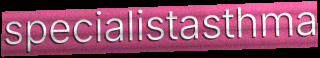
specialistasthma